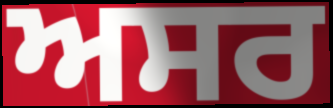
ਅਸਰ